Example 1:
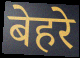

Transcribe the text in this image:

बेहरे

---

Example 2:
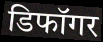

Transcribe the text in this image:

डिफॉगर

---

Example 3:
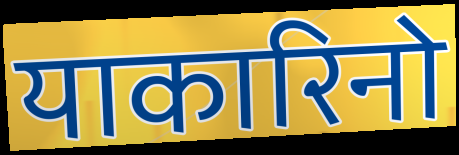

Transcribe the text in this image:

याकारिनो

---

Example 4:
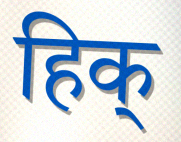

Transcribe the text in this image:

हिक्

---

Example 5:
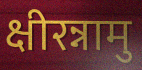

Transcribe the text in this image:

क्षीरन्नामु